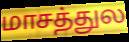
மாசத்துல